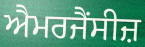
ਐਮਰਜੈਂਸੀਜ਼